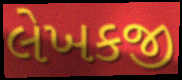
લેખકજી